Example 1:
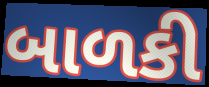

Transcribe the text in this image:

બાળકી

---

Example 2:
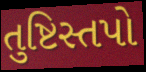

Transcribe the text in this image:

તુષ્ટિસ્તપો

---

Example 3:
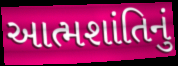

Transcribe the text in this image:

આત્મશાંતિનું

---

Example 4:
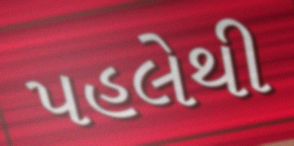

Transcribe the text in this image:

પહલેથી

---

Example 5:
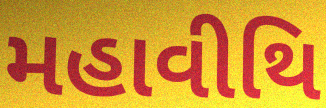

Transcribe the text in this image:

મહાવીથિ